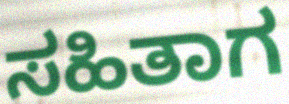
ಸಹಿತಾಗ